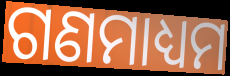
ଗଣମାଧ୍ୟମ